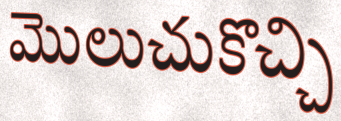
మొలుచుకొచ్చి